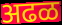
अढळ